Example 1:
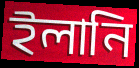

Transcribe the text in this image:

ইলানি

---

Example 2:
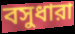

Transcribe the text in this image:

বসুধারা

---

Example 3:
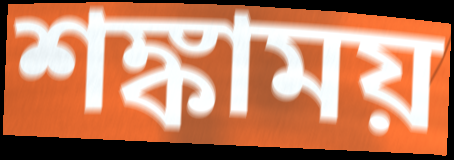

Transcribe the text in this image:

শঙ্কাময়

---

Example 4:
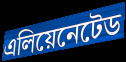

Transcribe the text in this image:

এলিয়েনেটেড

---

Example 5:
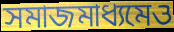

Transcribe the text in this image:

সমাজমাধ্যমেও